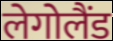
लेगोलैंड